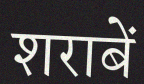
शराबें